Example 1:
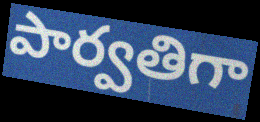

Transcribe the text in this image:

పార్వతిగా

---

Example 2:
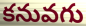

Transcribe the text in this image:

కనువగు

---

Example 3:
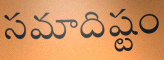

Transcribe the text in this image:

సమాదిష్టం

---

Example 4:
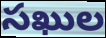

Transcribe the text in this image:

సఖుల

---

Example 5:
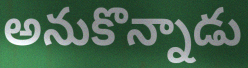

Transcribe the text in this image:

అనుకొన్నాడు